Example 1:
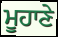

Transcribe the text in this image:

ਮੂਹਾਣੇ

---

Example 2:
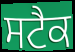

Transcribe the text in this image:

ਸਟੈਕ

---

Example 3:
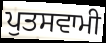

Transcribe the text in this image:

ਪੁਤਸਵਾਮੀ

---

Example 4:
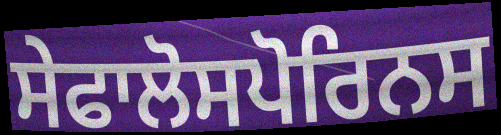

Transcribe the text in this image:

ਸੇਫਾਲੋਸਪੋਰਿਨਸ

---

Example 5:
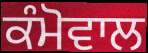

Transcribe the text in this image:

ਕੰਮੋਵਾਲ